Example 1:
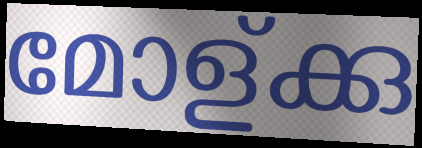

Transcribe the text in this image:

മോള്ക്കു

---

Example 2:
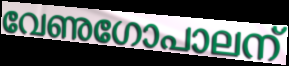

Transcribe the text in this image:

വേണുഗോപാലന്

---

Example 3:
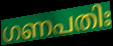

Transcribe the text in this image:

ഗണപതിഃ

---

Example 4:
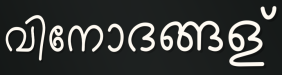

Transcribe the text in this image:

വിനോദങ്ങള്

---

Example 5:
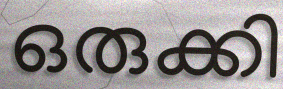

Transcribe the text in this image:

ഒരുക്കി